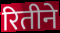
रितीने